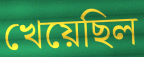
খেয়েছিল